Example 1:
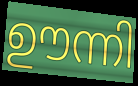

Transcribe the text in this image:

ഊന്നി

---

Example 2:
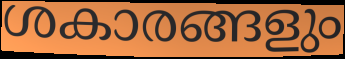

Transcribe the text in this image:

ശകാരങ്ങളും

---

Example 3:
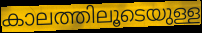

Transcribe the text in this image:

കാലത്തിലൂടെയുള്ള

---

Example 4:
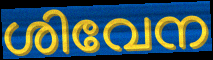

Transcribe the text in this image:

ശിവേന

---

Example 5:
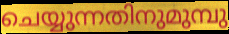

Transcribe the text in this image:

ചെയ്യുന്നതിനുമുമ്പു